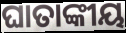
ଘାତାଙ୍କୀୟ